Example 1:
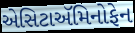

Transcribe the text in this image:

એસિટાઍમિનોફેન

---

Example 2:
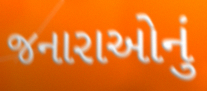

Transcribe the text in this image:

જનારાઓનું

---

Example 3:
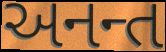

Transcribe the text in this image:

અનન્ત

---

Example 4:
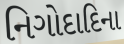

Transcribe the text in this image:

નિગોદાદિના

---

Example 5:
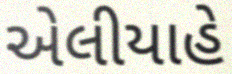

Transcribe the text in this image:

એલીયાહે